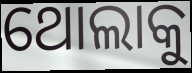
ଥୋଲାକୁ